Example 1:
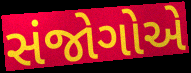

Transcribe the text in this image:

સંજોગોએ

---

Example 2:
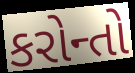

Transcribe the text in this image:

કરોન્તો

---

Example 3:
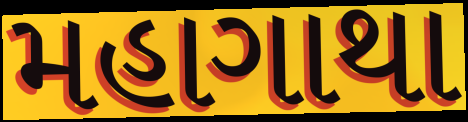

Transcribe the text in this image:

મહાગાથા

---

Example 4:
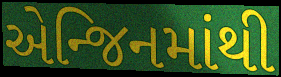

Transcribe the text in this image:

એન્જિનમાંથી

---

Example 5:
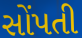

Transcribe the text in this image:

સોંપતી